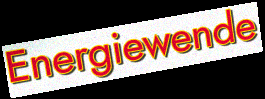
Energiewende